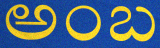
అంబ